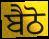
ਬੈਠੋ